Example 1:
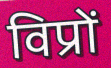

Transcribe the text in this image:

विप्रों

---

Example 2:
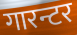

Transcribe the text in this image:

गारन्टर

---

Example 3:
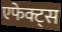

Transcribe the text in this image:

एफेक्ट्स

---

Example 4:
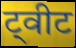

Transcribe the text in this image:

ट्‌वीट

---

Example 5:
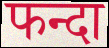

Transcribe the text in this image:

फन्दा